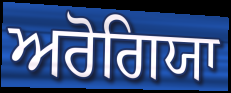
ਅਰੋਗਿਯਾ